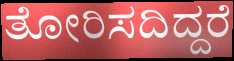
ತೋರಿಸದಿದ್ದರೆ